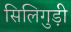
सिलिगुड़ी